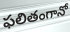
ఫలితంగానో